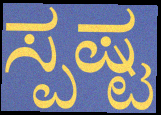
ಸ್ಪಷ್ಟ